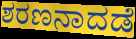
ಶರಣನಾದಡೆ